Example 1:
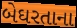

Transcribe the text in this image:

બેઘરતાના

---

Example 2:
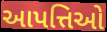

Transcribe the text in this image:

આપત્તિઓ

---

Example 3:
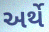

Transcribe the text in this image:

અર્થે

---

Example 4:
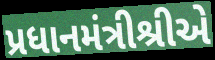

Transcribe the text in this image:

પ્રધાનમંત્રીશ્રીએ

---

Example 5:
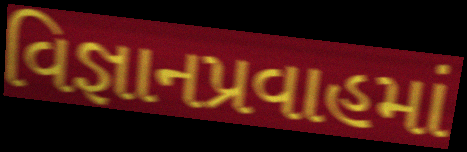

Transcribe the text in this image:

વિજ્ઞાનપ્રવાહમાં